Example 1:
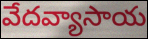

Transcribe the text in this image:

వేదవ్యాసాయ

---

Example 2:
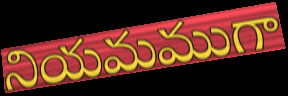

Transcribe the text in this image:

నియమముగా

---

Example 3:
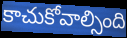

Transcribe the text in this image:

కాచుకోవాల్సింది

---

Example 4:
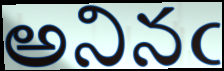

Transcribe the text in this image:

అనినఁ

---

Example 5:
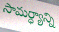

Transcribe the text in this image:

సామర్ధ్యాన్ని